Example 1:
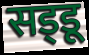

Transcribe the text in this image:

सड्‌डू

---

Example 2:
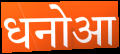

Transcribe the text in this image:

धनोआ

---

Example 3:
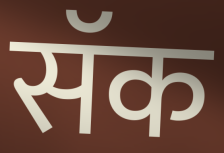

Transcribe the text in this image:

सॅक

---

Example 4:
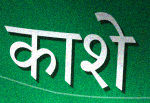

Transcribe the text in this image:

काशे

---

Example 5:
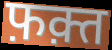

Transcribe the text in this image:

फ़क़्त